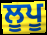
ਲੂਪੂ